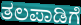
ತಲಪಾಡಿಗೆ